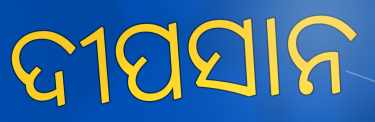
ଦୀପସାନ